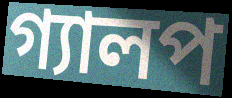
গ্যালপ